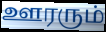
ஊரரும்